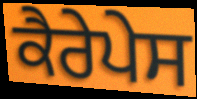
ਕੈਰੇਪੇਸ